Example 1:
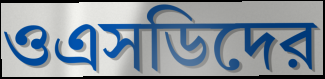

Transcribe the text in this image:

ওএসডিদের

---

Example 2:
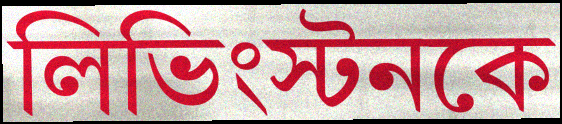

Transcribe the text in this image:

লিভিংস্টনকে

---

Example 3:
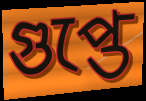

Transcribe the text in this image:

গুপ্তে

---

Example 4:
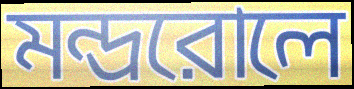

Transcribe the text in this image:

মন্দ্ররোলে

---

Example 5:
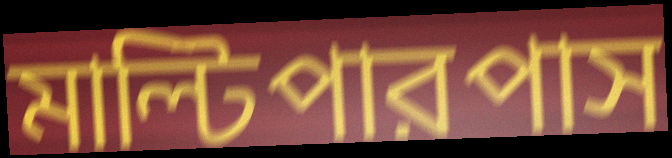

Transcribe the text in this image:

মাল্টিপারপাস